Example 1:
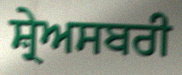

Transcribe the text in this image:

ਸ਼੍ਰੇਅਸਬਰੀ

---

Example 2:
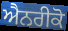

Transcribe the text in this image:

ਐਨਰੀਕੋ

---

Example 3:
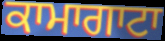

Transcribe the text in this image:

ਕਾਮਾਗਾਟਾ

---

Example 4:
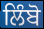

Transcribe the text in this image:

ਲਿੰਬੋ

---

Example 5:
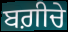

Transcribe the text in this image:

ਬਗ਼ੀਚੇ